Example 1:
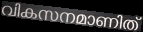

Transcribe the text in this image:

വികസനമാണിത്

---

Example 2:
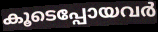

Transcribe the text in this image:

കൂടെപ്പോയവർ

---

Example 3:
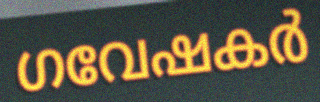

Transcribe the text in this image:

ഗവേഷകർ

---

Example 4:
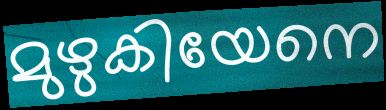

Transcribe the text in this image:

മുഴുകിയേനെ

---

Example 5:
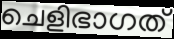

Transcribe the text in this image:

ചെളിഭാഗത്